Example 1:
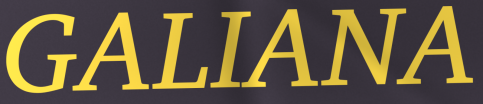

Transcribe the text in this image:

GALIANA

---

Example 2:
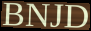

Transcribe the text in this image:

BNJD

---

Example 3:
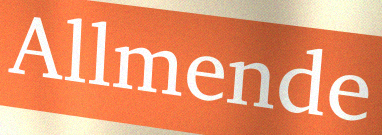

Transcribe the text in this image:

Allmende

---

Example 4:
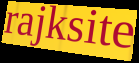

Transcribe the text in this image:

rajksite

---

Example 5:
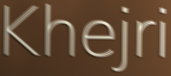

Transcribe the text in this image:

Khejri